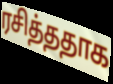
ரசித்ததாக